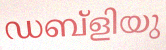
ഡബ്ളിയു